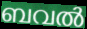
ബവൽ